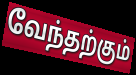
வேந்தற்கும்